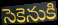
సెకెనుకి